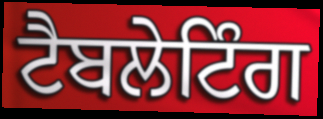
ਟੈਬਲੇਟਿੰਗ